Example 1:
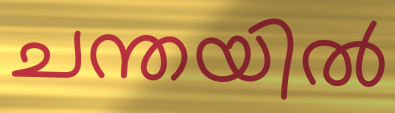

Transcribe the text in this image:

ചന്തയിൽ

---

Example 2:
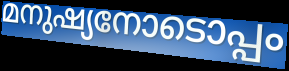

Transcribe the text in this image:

മനുഷ്യനോടൊപ്പം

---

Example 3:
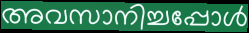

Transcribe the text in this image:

അവസാനിച്ചപ്പോൾ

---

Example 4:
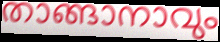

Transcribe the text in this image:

താങ്ങാനാവും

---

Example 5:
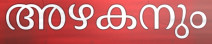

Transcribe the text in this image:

അഴകനും